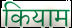
कियाम